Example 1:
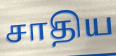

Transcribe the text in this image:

சாதிய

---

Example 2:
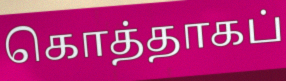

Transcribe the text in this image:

கொத்தாகப்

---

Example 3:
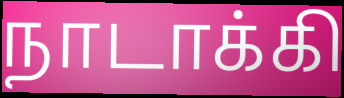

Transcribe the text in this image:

நாடாக்கி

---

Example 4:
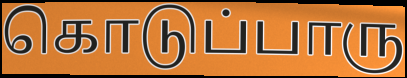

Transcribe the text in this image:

கொடுப்பாரு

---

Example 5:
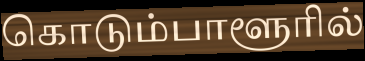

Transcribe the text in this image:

கொடும்பாளூரில்